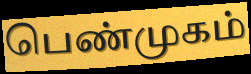
பெண்முகம்